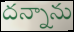
దన్నాను